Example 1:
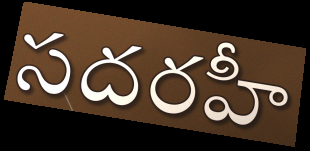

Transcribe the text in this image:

సదరహీ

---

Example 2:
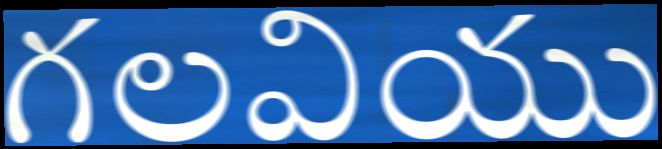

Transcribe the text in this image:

గలవియు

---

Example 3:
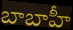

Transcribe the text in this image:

బాబాహీ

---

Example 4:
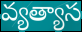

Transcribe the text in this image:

వ్యత్యాస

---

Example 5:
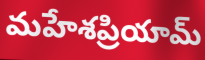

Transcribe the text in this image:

మహేశప్రియామ్